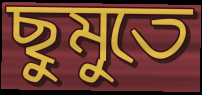
ছুমুতে